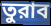
তুরাব